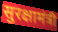
सुरक्षामंत्री